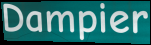
Dampier